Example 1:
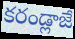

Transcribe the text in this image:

కరండ్లాజే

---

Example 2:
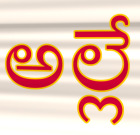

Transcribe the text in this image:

అల్లే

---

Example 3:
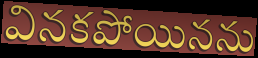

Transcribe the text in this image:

వినకపోయినను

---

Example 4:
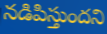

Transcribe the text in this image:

నడిపిస్తుందని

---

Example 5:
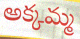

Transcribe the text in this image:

అక్కమ్మ